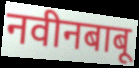
नवीनबाबू